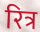
रित्र